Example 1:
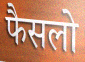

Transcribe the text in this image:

फैसलो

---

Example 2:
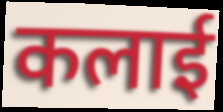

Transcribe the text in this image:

कलाई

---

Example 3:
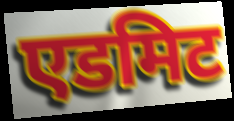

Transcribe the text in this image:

एडमिट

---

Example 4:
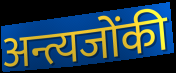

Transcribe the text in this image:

अन्त्यजोंकी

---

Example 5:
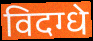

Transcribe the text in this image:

विदग्धे